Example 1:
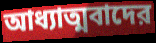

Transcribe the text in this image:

আধ্যাত্মবাদের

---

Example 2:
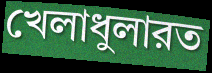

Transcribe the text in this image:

খেলাধুলারত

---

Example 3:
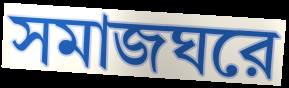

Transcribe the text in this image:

সমাজঘরে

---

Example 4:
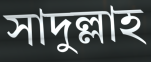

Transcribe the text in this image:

সাদুল্লাহ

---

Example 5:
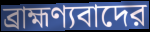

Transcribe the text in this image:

ব্রাহ্মণ্যবাদের